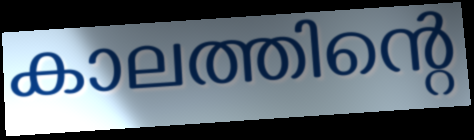
കാലത്തിന്റെ